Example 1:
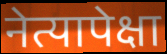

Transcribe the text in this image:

नेत्यापेक्षा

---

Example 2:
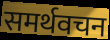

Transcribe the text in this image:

समर्थवचन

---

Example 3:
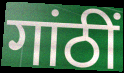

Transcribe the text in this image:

गांठीं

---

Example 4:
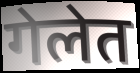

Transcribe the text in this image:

गेलेत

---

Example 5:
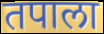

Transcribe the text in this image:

तपाला